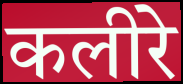
कलीरे